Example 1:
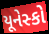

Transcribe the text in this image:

યૂનેસ્કો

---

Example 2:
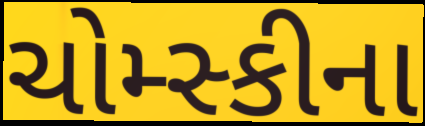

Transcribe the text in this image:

ચોમ્સ્કીના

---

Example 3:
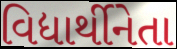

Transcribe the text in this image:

વિદ્યાર્થીનેતા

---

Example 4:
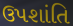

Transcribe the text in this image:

ઉપશાંતિ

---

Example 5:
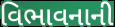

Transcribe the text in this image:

વિભાવનાની